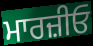
ਮਾਰਜ਼ੀਓ